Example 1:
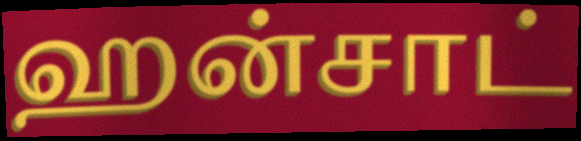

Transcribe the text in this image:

ஹன்சாட்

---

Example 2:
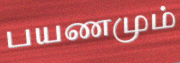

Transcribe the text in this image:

பயணமும்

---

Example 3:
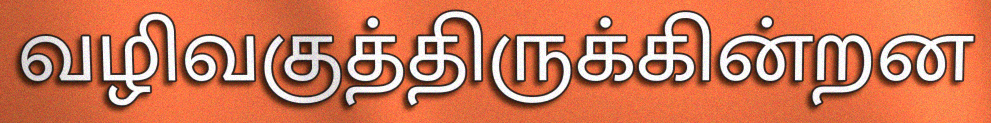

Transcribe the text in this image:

வழிவகுத்திருக்கின்றன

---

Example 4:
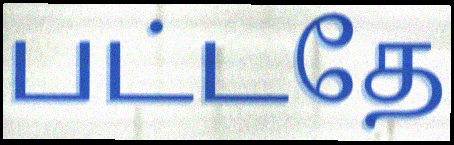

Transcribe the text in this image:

பட்டதே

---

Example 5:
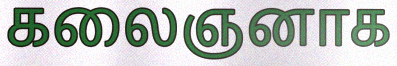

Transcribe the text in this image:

கலைஞனாக